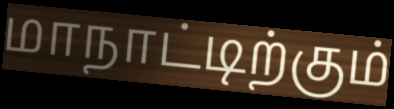
மாநாட்டிற்கும்